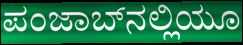
ಪಂಜಾಬ್‌ನಲ್ಲಿಯೂ